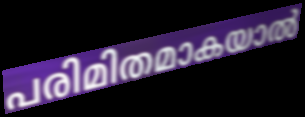
പരിമിതമാകയാൽ